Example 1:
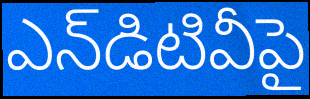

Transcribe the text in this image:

ఎన్‌డిటివీపై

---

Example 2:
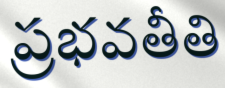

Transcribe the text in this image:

ప్రభవతీతి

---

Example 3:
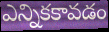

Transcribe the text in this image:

ఎన్నికకావడం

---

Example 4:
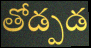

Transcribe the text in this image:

తోడ్పడ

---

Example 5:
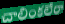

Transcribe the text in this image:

చాలింకలేరా